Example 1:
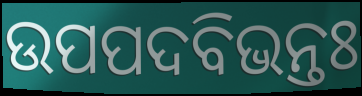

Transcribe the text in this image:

ଉପପଦବିଭନ୍ତଃ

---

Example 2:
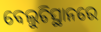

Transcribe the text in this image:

ବେଲୁଚିସ୍ଥାନରେ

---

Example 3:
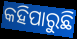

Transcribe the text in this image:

କହିପାରୁଛି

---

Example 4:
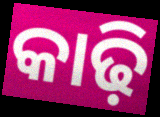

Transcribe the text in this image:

କାଢ଼ି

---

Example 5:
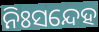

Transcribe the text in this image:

ନିଃସନ୍ଦେହ